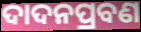
ଦାଦନପ୍ରବଣ